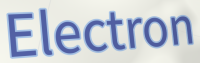
Electron